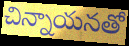
చిన్నాయనతో